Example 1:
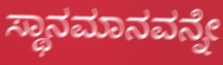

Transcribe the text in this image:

ಸ್ಥಾನಮಾನವನ್ನೇ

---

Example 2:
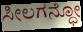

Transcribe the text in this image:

ಸೀಲಗನ್ಧೋ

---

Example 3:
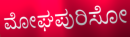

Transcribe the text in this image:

ಮೋಘಪುರಿಸೋ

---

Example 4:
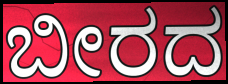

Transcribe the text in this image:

ಬೀರದ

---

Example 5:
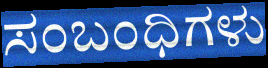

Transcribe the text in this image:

ಸಂಬಂಧಿಗಳು